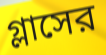
গ্লাসের